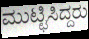
ಮುಟ್ಟಿಸಿದ್ದರು